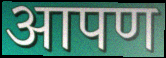
आपण